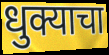
धुक्याचा